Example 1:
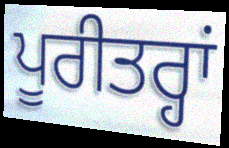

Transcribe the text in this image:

ਪੂਰੀਤਰ੍ਹਾਂ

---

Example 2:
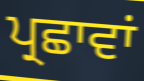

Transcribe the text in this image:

ਪ੍ਰਛਾਵਾਂ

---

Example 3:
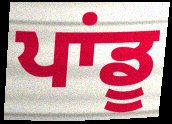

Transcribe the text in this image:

ਪਾਂਡੂ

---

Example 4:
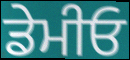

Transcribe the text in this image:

ਡੇਮੀਓ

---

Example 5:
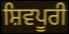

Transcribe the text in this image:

ਸ਼ਿਵਪੂਰੀ